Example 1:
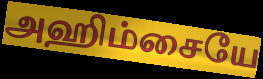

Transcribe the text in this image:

அஹிம்சையே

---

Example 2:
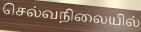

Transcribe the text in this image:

செல்வநிலையில்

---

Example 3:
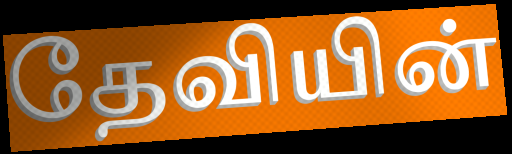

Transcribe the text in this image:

தேவியின்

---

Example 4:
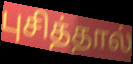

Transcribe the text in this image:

புசித்தால்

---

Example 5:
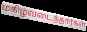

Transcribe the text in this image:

மகிழ்வடைந்தார்கள்